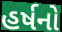
હર્ષનો